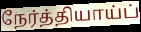
நேர்த்தியாய்ப்